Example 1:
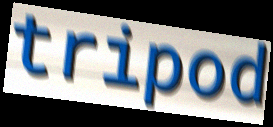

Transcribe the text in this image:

tripod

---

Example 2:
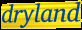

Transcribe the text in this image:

dryland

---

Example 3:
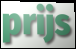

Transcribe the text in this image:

prijs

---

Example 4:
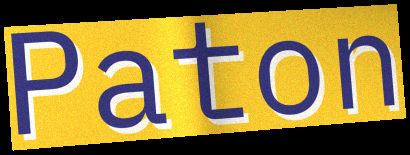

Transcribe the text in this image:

Paton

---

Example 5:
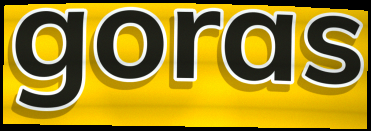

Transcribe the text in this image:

goras